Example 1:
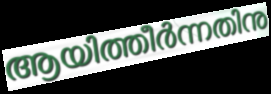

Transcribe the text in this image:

ആയിത്തീർന്നതിനു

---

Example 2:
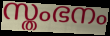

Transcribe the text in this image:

സ്തംഭനം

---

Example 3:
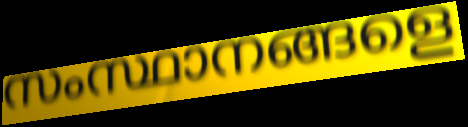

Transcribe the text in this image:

സംസ്ഥാനങ്ങളെ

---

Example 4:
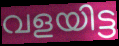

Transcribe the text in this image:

വളയിട്ട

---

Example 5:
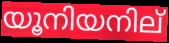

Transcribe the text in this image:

യൂനിയനില്